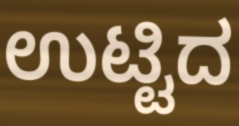
ಉಟ್ಟಿದ